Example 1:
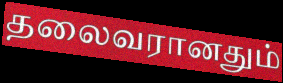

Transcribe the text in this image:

தலைவரானதும்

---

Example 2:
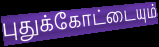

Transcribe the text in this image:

புதுக்கோட்டையும்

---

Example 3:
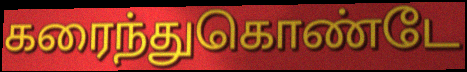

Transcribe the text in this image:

கரைந்துகொண்டே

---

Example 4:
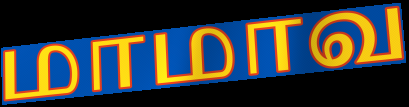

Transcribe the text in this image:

மாமாவ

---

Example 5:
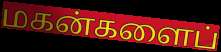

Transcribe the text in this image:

மகன்களைப்